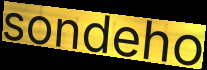
sondeho